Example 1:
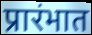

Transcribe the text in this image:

प्रारंभात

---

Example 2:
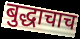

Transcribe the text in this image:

बुद्धाचाच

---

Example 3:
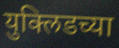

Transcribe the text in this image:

युक्लिडच्या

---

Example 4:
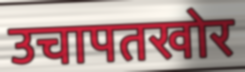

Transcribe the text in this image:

उचापतखोर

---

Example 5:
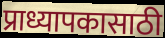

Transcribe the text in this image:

प्राध्यापकासाठी